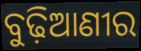
ବୁଢ଼ିଆଣୀର